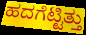
ಹದಗೆಟ್ಟಿತ್ತು